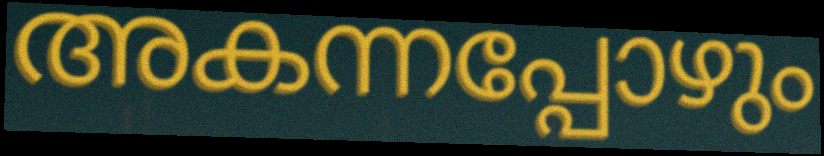
അകന്നപ്പോഴും